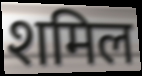
शमिल